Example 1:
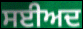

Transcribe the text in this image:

ਸਈਅਦ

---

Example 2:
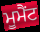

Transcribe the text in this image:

ਮੂਮੈਂਟ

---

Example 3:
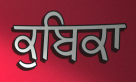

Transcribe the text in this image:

ਕੁਬਿਕਾ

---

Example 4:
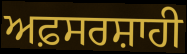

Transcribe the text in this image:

ਅਫ਼ਸਰਸ਼ਾਹੀ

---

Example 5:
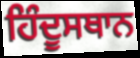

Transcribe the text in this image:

ਹਿੰਦੂਸਥਾਨ